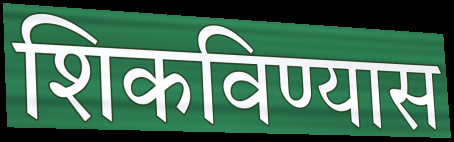
शिकविण्यास